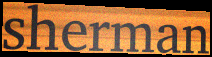
sherman